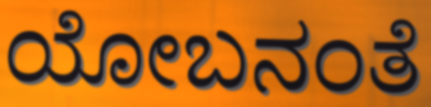
ಯೋಬನಂತೆ